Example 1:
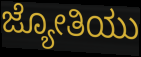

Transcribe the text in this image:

ಜ್ಯೋತಿಯು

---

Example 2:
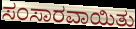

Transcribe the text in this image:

ಸಂಸಾರವಾಯಿತು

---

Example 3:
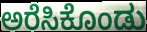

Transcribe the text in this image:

ಅರೆಸಿಕೊಂಡು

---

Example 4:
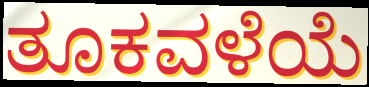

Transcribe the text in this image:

ತೂಕವಳೆಯೆ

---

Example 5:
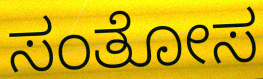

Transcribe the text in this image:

ಸಂತೋಸ